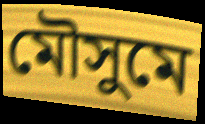
মৌসুমে